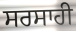
ਸਰਸਾਹੀ